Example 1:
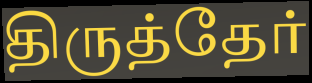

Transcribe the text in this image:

திருத்தேர்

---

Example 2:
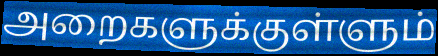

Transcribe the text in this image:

அறைகளுக்குள்ளும்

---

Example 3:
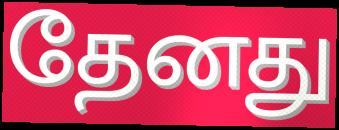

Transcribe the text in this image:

தேனது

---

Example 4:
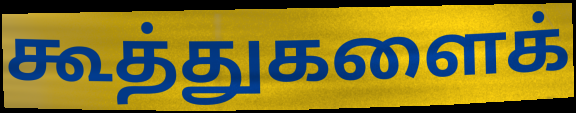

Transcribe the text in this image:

கூத்துகளைக்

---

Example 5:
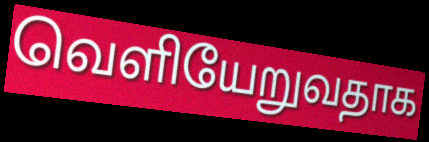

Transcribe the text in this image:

வெளியேறுவதாக